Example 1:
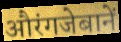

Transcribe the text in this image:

औरंगजेबानें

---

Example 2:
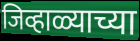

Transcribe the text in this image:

जिव्हाळ्याच्या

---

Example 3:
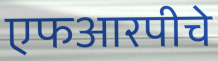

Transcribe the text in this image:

एफआरपीचे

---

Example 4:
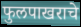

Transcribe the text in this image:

फुलपाखराचे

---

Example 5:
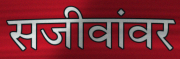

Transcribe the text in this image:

सजीवांवर